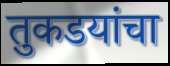
तुकडयांचा